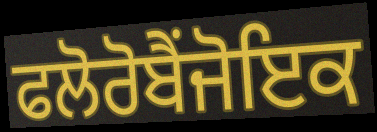
ਫਲੋਰੋਬੈਂਜੋਇਕ